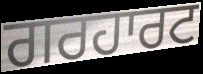
ਗਰਹਾਰਟ